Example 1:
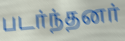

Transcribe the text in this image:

படர்ந்தனர்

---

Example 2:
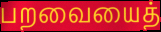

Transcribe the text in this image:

பறவையைத்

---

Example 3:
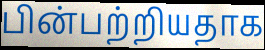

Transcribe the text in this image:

பின்பற்றியதாக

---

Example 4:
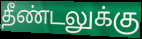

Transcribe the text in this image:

தீண்டலுக்கு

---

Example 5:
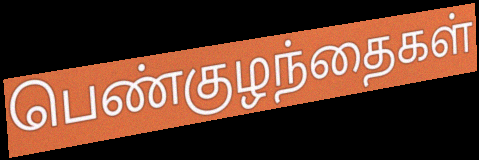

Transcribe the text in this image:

பெண்குழந்தைகள்